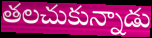
తలచుకున్నాడు